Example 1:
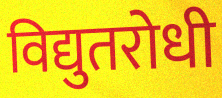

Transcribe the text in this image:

विद्युतरोधी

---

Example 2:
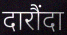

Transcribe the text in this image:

दारौंदा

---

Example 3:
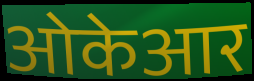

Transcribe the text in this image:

ओकेआर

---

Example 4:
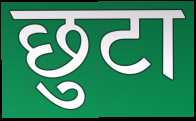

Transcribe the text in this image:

छुटा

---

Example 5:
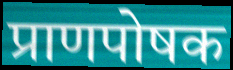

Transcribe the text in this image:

प्राणपोषक